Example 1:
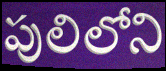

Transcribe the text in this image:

పులిలోని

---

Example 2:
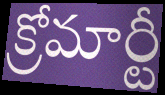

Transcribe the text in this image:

క్రోమార్టీ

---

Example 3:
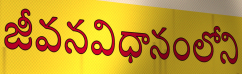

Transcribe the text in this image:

జీవనవిధానంలోని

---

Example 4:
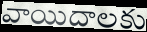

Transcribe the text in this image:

వాయిదాలకు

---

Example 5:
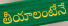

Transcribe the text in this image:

తీయాలంటేనే